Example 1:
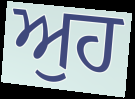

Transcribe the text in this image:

ਅੁਹ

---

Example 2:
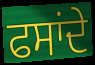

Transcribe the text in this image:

ਫਸਾਂਦੇ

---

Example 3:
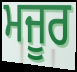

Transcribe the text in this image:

ਮਜੂਰ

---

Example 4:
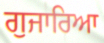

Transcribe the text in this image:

ਗੁਜਾਰਿਆ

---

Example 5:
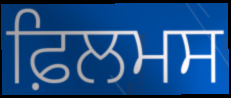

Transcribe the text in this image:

ਫ਼ਿਲਮਸ